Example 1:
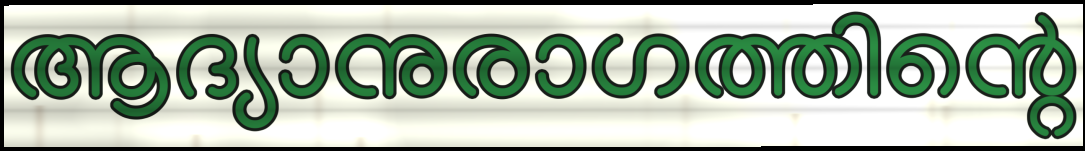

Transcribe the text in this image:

ആദ്യാനുരാഗത്തിന്റെ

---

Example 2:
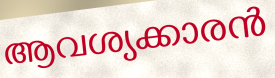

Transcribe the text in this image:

ആവശ്യക്കാരൻ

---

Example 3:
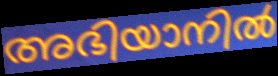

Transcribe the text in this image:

അഭിയാനിൽ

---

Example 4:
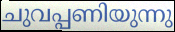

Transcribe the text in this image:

ചുവപ്പണിയുന്നു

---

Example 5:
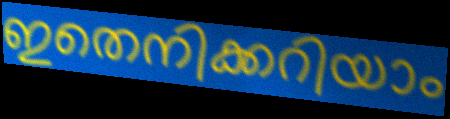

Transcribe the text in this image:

ഇതെനിക്കറിയാം